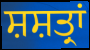
ਸ਼ਸ਼ਤ੍ਰਾਂ